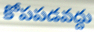
కోపపడవద్దు